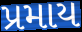
પ્રમાય